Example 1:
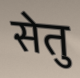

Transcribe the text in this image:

सेतु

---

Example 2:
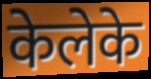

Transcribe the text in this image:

केलेके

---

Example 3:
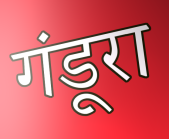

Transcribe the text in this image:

गंडूरा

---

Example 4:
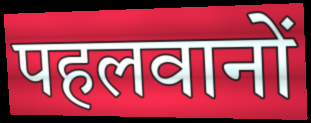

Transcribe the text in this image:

पहलवानों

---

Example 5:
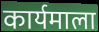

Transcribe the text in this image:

कार्यमाला